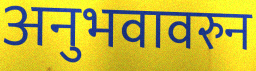
अनुभवावरुन